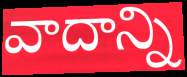
వాదాన్ని